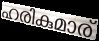
ഹരികുമാര്